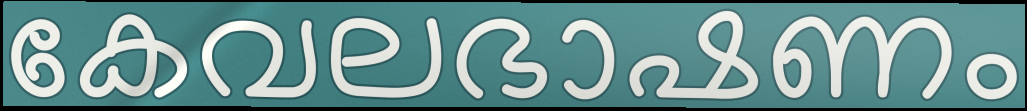
കേവലഭാഷണം